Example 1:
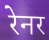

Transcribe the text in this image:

रेनर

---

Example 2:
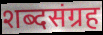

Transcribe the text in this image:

शब्दसंग्रह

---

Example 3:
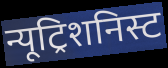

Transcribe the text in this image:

न्‍यूट्रिशनिस्‍ट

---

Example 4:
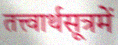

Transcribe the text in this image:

तत्त्वार्थसूत्रमें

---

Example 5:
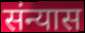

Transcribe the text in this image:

संन्यास